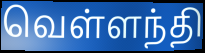
வெள்ளந்தி